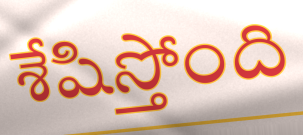
శేషిస్తోంది